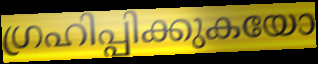
ഗ്രഹിപ്പിക്കുകയോ